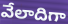
వేలాదిగా